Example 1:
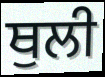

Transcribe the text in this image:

ਥੁਲੀ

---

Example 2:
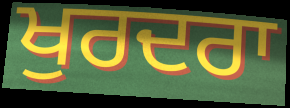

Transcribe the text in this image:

ਖੁਰਦਰਾ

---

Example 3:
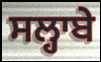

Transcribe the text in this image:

ਸਲ੍ਹਾਬੇ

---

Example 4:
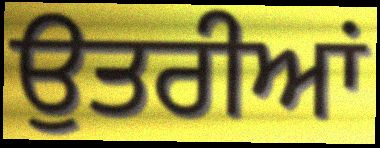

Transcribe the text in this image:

ਉਤਰੀਆਂ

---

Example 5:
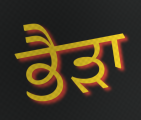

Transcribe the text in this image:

ਭੈੜਾ